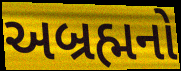
અબ્રહ્મનો